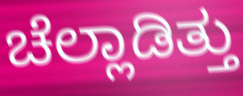
ಚೆಲ್ಲಾಡಿತ್ತು